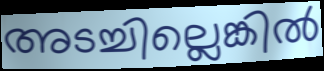
അടച്ചില്ലെങ്കിൽ